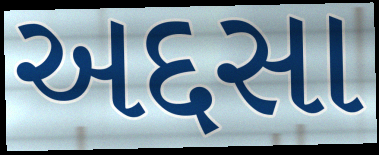
અદ્દસા